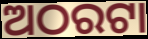
ଅଠରଟା